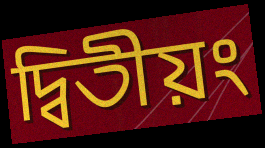
দ্বিতীয়ং